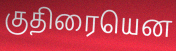
குதிரையென